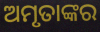
ଅମୃତାଙ୍କର